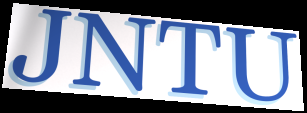
JNTU